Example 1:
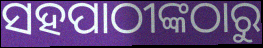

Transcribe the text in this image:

ସହପାଠୀଙ୍କଠାରୁ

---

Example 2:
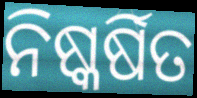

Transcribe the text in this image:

ନିଷ୍କର୍ଷିତ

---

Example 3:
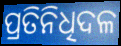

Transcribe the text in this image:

ପ୍ରତିନିଧିଦଳ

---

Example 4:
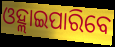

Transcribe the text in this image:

ଓହ୍ଲାଇପାରିବେ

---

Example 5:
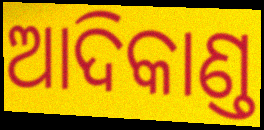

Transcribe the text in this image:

ଆଦିକାଣ୍ଡ